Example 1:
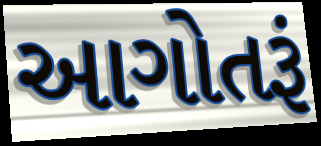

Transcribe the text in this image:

આગોતરૂં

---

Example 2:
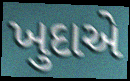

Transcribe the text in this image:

ખુદાએ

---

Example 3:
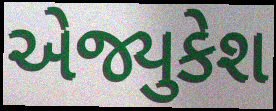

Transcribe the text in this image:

એજ્યુકેશ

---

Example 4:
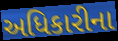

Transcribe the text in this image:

અધિકારીના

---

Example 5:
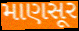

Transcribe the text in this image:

માણસૂર